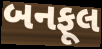
બનફૂલ